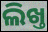
ଲିଖ୍ତ